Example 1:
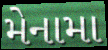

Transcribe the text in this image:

મેનામા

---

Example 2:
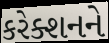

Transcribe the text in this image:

કરેક્શનને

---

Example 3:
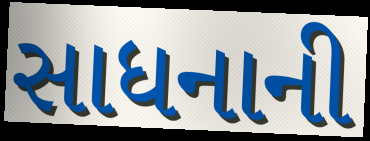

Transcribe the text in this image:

સાધનાની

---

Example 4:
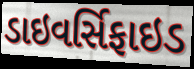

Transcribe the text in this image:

ડાઇવર્સિફાઇડ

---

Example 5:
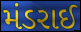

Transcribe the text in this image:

મંડરાઈ